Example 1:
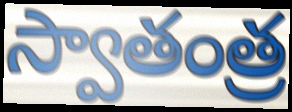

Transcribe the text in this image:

స్వాతంత్ర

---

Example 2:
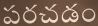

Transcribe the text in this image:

పరచడం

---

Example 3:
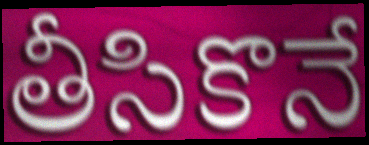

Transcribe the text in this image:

తీసికొనే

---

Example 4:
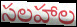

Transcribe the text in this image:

సలహాల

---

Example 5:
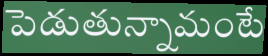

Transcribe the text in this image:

పెడుతున్నామంటే